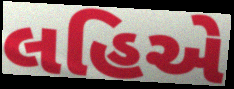
લહિએ